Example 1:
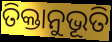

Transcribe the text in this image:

ତିକ୍ତାନୁଭୂତି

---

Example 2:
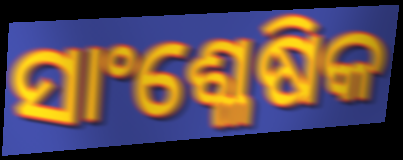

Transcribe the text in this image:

ସାଂଶ୍ଳେଷିକ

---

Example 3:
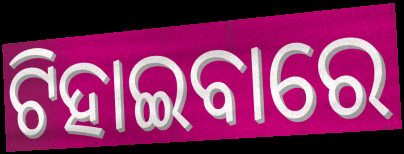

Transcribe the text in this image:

ଟିହାଇବାରେ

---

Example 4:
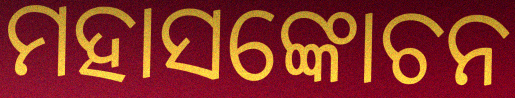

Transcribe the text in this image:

ମହାସଙ୍କୋଚନ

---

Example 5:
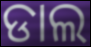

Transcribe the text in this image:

ଡାଲ